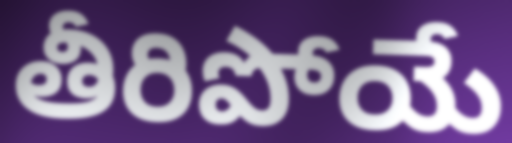
తీరిపోయే